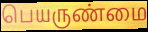
பெயருண்மை